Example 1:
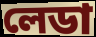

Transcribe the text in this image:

লেডা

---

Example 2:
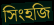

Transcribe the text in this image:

সিংহজি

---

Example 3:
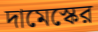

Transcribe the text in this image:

দামেস্কের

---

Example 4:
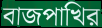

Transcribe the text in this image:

বাজপাখির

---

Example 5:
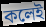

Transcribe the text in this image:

কলেই